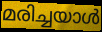
മരിച്ചയാൾ